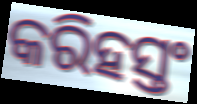
କରିହସ୍ତଂ